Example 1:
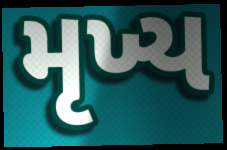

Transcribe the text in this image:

મૃખ્ય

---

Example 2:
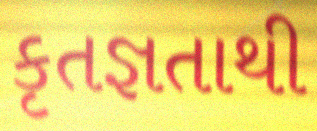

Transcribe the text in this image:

કૃતજ્ઞતાથી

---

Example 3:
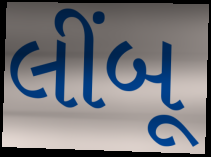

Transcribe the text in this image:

લીંબૂ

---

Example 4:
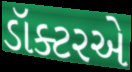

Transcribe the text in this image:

ડૉક્ટરએ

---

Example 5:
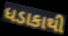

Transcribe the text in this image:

ધડાકાથી